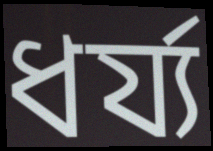
ধর্য্য